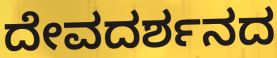
ದೇವದರ್ಶನದ